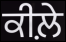
ਕੀਲ਼ੇ